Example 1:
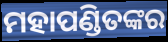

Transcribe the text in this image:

ମହାପଣ୍ଡିତଙ୍କର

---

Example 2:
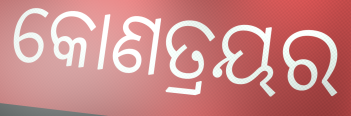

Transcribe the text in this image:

କୋଣତ୍ରୟର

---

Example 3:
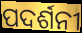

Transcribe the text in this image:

ପଦର୍ଶନୀ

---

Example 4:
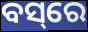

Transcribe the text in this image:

ବସ୍‌ରେ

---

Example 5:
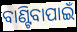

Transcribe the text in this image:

ବାଣ୍ଟିବାପାଇଁ